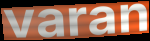
varan